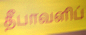
தீபாவளிப்